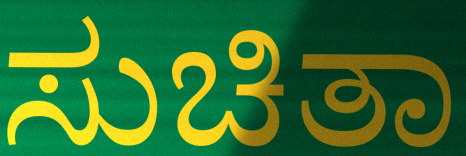
ಸುಚಿತಾ